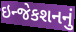
ઇન્જેકશનનું